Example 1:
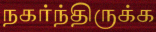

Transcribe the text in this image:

நகர்ந்திருக்க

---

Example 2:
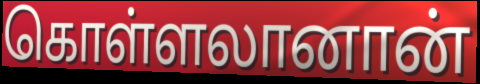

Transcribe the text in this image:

கொள்ளலானான்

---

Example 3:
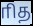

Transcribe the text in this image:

ரித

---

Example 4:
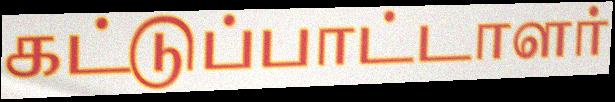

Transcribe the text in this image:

கட்டுப்பாட்டாளர்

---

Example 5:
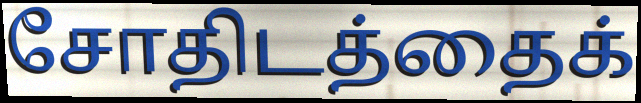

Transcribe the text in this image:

சோதிடத்தைக்